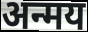
अन्मय